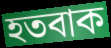
হতবাক